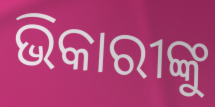
ଭିକାରୀଙ୍କୁ